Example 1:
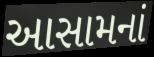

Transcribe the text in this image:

આસામનાં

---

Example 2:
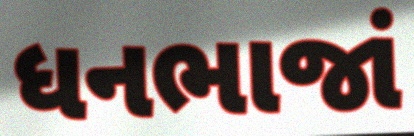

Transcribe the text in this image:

ધનભાજાં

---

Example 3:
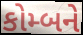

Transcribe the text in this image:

કોમ્બને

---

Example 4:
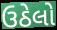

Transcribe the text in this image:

ઉઠેલો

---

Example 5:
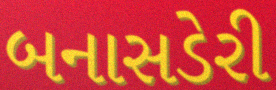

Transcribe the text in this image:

બનાસડેરી